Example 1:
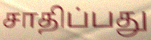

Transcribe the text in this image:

சாதிப்பது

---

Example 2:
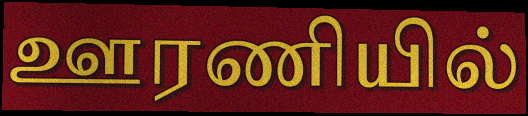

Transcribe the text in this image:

ஊரணியில்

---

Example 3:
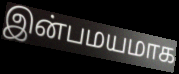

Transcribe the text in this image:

இன்பமயமாக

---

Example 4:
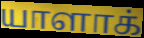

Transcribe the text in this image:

யாளாக்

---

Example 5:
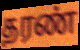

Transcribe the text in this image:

தரண்